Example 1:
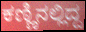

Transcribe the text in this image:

ಕಣ್ಣಿನಲ್ಲಿದ್ದ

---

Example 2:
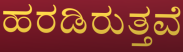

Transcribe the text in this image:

ಹರಡಿರುತ್ತವೆ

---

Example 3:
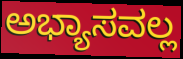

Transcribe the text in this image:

ಅಭ್ಯಾಸವಲ್ಲ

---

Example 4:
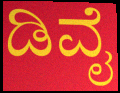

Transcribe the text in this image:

ಡಿವೈ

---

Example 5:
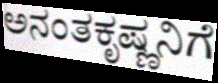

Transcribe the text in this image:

ಅನಂತಕೃಷ್ಣನಿಗೆ